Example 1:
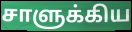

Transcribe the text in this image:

சாளுக்கிய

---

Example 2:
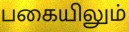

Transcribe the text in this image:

பகையிலும்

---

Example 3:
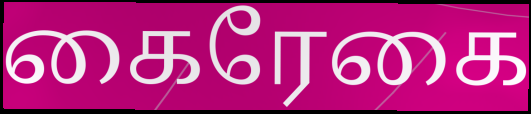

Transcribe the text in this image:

கைரேகை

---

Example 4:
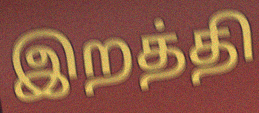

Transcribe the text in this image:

இறத்தி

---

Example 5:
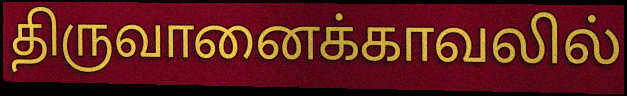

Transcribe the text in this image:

திருவானைக்காவலில்